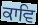
ਕਾਵਿ